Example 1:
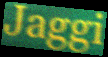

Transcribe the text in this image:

Jaggi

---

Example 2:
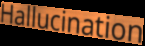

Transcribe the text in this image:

Hallucination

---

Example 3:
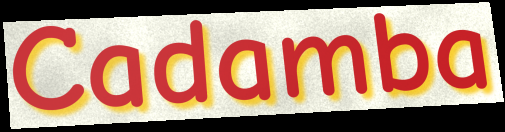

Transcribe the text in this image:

Cadamba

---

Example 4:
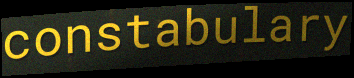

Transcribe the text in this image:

constabulary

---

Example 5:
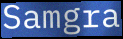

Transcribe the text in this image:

Samgra